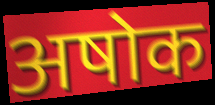
अषोक